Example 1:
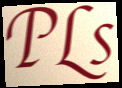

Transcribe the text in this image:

PLs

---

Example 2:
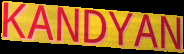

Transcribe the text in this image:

KANDYAN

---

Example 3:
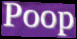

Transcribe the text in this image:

Poop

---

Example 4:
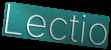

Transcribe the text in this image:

Lectio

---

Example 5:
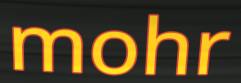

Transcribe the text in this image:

mohr